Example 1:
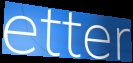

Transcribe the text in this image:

etter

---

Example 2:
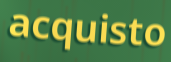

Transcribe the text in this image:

acquisto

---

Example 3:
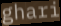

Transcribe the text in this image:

ghari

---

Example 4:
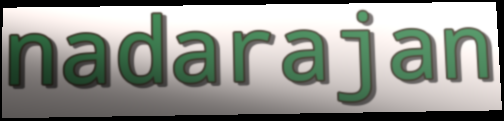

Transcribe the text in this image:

nadarajan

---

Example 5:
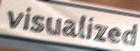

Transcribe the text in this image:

visualized